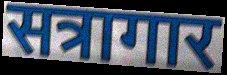
सत्रागार